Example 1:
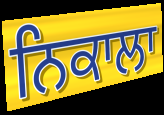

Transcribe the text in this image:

ਨਿਕਾਲਾ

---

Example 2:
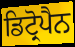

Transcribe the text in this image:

ਡਿਟ੍ਰੋਪੈਨ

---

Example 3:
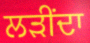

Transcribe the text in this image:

ਲੜੀਂਦਾ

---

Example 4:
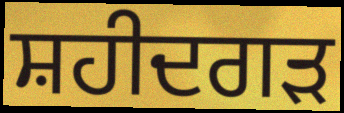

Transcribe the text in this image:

ਸ਼ਹੀਦਗੜ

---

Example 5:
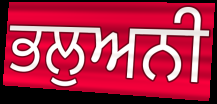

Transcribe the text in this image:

ਭਲੁਅਨੀ